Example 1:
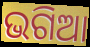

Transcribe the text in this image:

ଭଗିଆ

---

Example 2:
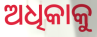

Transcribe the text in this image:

ଅଧିକାକୁ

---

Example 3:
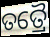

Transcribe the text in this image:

ତତ୍ରୈ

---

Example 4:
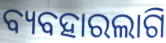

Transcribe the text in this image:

ବ୍ୟବହାରଲାଗି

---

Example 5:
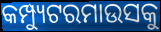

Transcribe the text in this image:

କମ୍ପ୍ୟୁଟରମାଉସକୁ